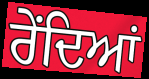
ਰੇਂਦਿਆਂ